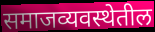
समाजव्यवस्थेतील